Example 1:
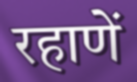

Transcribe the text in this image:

रहाणें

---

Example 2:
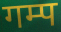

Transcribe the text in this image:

गम्प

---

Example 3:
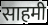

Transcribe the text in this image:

साहमी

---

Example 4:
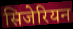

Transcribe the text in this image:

सिजेरियन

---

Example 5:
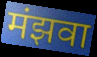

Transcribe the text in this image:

मंझवा